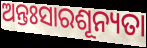
ଅନ୍ତଃସାରଶୂନ୍ୟତା